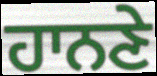
ਹਾਨਣੇ